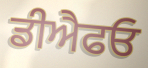
ਡੀਐਫਓ